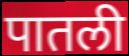
पातली